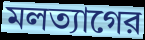
মলত্যাগের